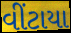
વીંટાયા